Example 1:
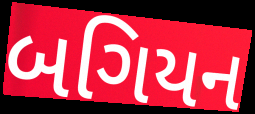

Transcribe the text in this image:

બગિયન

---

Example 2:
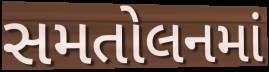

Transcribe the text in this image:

સમતોલનમાં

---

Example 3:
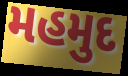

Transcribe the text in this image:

મહમુદ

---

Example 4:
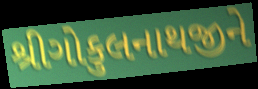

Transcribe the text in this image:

શ્રીગોકુલનાથજીને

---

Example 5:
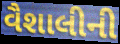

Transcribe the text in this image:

વૈશાલીની